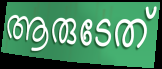
ആരുടേത്